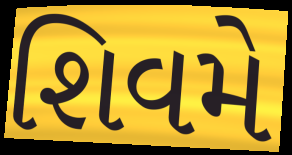
શિવમે